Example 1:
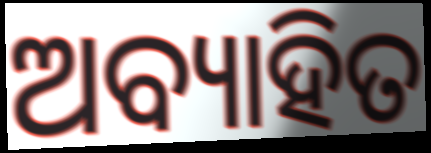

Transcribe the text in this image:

ଅବ୍ୟାହିତ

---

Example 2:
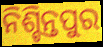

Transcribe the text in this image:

ନିଶ୍ଚିନ୍ତପୁର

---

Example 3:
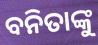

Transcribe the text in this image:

ବନିତାଙ୍କୁ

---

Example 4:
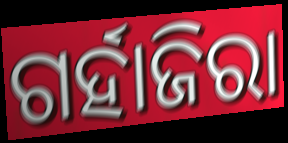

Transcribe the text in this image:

ଗର୍ହାଜିରା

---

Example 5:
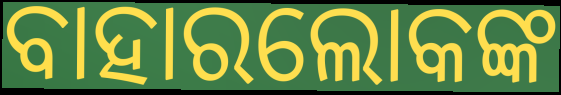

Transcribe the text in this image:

ବାହାରଲୋକଙ୍କ